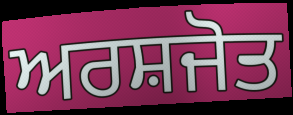
ਅਰਸ਼ਜੋਤ